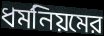
ধর্মনিয়মের